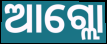
ଆଗ୍ଲୋ